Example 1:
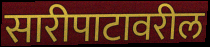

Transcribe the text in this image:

सारीपाटावरील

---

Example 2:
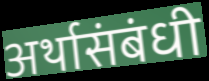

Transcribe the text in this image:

अर्थासंबंधी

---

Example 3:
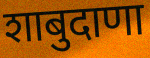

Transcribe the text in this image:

शाबुदाणा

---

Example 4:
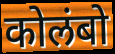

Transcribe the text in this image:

कोलंबो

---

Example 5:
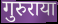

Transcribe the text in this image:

गुरुराया